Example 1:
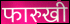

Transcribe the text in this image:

फारुखी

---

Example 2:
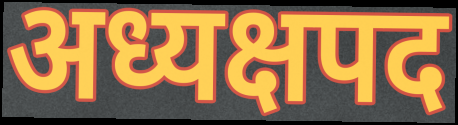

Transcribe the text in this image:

अध्यक्षपद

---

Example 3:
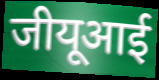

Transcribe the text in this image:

जीयूआई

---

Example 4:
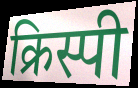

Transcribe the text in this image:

क्रिस्पी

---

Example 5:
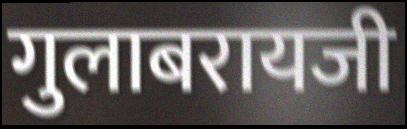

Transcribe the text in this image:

गुलाबरायजी